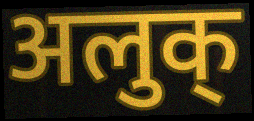
अलुक्